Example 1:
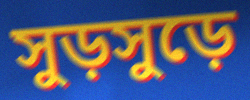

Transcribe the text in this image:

সুড়সুড়ে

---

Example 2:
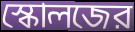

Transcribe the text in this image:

স্কোলজের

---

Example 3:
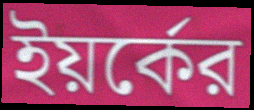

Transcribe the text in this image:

ইয়র্কের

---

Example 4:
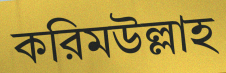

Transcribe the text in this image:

করিমউল্লাহ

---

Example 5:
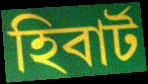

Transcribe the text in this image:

হিবার্ট